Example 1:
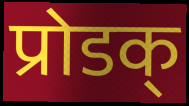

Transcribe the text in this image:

प्रोडक्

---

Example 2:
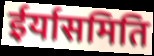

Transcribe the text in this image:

ईर्यासमिति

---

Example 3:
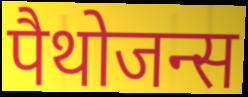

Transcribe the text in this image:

पैथोजन्स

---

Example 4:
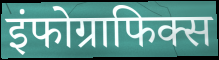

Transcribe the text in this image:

इंफोग्राफिक्स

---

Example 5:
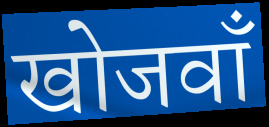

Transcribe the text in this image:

खोजवाँ